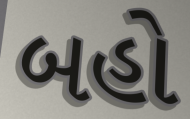
બહો